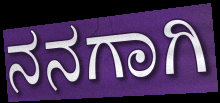
ನನಗಾಗಿ